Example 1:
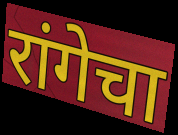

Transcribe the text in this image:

रांगेचा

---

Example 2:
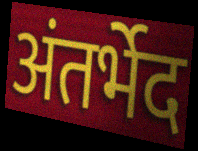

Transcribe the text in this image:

अंतर्भेद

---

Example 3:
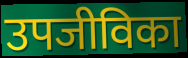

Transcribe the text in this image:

उपजीविका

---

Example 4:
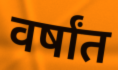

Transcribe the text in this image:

वर्षांत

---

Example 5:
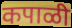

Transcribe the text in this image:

कपाळी